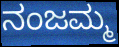
ನಂಜಮ್ಮ